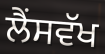
ਲੈਂਸਵੱਖ